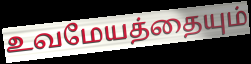
உவமேயத்தையும்